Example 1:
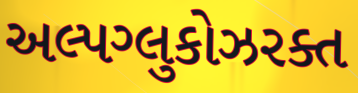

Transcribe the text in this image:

અલ્પગ્લુકોઝરક્ત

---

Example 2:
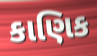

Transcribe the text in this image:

કાણિક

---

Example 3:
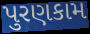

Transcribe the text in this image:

પુરણકામ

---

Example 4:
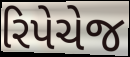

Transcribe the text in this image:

રિપેચેજ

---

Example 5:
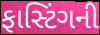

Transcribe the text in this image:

ફાસ્ટિંગની